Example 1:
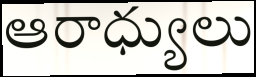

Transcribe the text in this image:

ఆరాధ్యులు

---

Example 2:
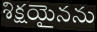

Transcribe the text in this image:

శిక్షయైనను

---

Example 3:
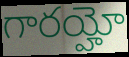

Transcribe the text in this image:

గారయ్హో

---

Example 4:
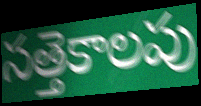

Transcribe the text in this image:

సత్తెకాలపు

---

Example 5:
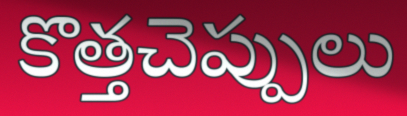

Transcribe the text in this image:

కొత్తచెప్పులు